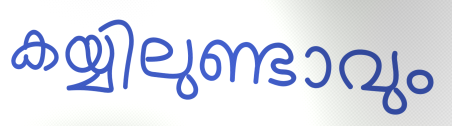
കയ്യിലുണ്ടാവും